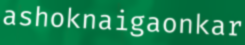
ashoknaigaonkar